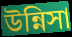
উন্নিসা